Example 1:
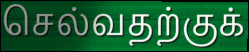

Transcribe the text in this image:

செல்வதற்குக்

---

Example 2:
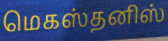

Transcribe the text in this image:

மெகஸ்தனிஸ்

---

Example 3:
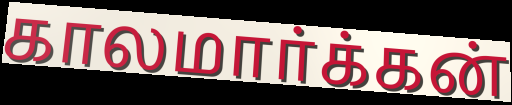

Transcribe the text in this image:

காலமார்க்கன்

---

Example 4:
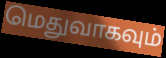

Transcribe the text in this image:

மெதுவாகவும்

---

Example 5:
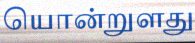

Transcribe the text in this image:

யொன்றுளது